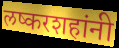
लष्करशहांनी